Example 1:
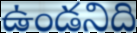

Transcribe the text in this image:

ఉండనిది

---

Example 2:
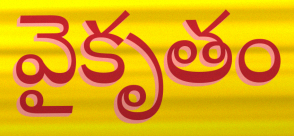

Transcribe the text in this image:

వైకృతం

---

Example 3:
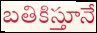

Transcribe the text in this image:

బతికిస్తూనే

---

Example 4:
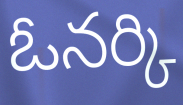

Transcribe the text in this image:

ఓనర్కి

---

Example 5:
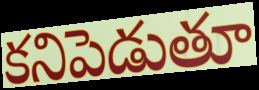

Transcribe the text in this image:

కనిపెడుతూ